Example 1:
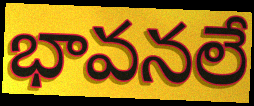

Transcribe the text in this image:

భావనలే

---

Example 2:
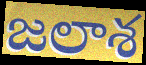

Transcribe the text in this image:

జలాశ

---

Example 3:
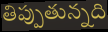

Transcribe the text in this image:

తిప్పుతున్నది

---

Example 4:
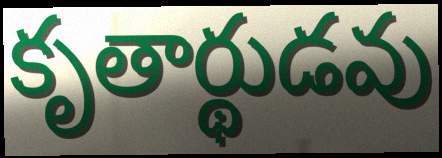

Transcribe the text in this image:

కృతార్థుడవు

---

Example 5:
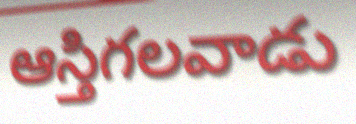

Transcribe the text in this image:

ఆస్తిగలవాడు